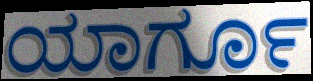
ಯಾರ್ಗೂ